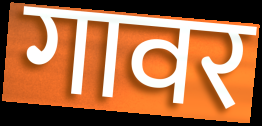
गावर